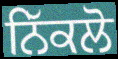
ਨਿੱਕਲੋ